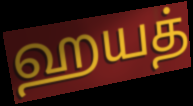
ஹயத்